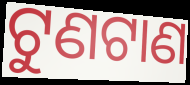
ଟୁଣଟାଣ